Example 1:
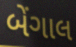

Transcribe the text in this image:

બેંગાલ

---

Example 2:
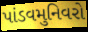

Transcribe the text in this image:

પાંડવમુનિવરો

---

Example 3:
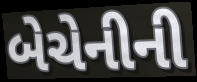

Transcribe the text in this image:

બેચેનીની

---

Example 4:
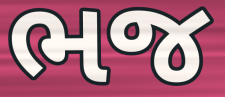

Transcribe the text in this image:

ભજ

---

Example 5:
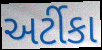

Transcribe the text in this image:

અર્ટીકા